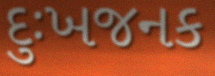
દુઃખજનક